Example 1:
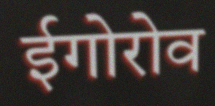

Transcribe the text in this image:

ईगोरोव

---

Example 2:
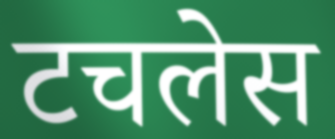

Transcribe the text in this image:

टचलेस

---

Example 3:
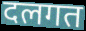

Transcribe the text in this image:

दलगत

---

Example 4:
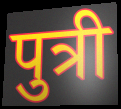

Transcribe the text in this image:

पुत्री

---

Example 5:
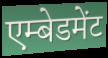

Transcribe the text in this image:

एम्बेडमेंट